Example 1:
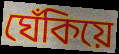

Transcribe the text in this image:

ঘেঁকিয়ে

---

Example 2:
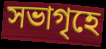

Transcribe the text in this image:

সভাগৃহে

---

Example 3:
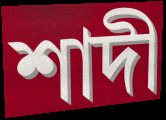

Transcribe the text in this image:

শাদী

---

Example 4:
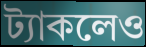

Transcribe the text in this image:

ট্যাকলেও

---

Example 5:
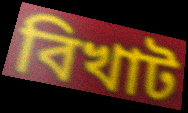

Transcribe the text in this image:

বিখাট